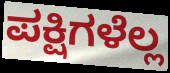
ಪಕ್ಷಿಗಳೆಲ್ಲ